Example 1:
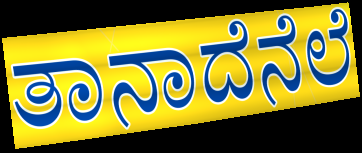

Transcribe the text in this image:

ತಾನಾದೆನೆಲೆ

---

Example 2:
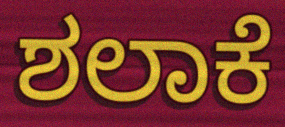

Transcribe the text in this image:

ಶಲಾಕೆ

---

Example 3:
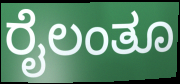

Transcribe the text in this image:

ರೈಲಂತೂ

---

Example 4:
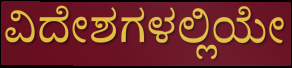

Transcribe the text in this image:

ವಿದೇಶಗಳಲ್ಲಿಯೇ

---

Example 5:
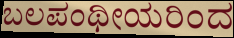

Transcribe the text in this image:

ಬಲಪಂಥೀಯರಿಂದ